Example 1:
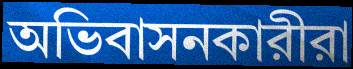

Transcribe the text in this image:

অভিবাসনকারীরা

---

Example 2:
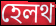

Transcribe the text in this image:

হেলথ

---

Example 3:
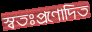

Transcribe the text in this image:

স্বতঃপ্রণোদিত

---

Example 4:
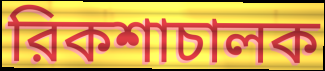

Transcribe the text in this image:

রিকশাচালক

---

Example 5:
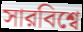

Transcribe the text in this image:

সারবিশ্বে